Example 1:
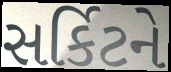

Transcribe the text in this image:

સર્કિટને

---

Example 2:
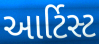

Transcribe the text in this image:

આર્ટિસ્ટ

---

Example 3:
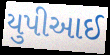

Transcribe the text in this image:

યુપીઆઈ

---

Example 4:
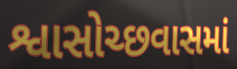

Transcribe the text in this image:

શ્વાસોચ્છવાસમાં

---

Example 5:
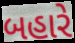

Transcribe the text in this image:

બહારે